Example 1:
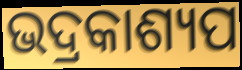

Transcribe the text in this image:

ଭଦ୍ରକାଶ୍ୟପ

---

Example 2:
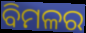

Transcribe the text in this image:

ବିମଳର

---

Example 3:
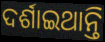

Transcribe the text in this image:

ଦର୍ଶାଇଥାନ୍ତି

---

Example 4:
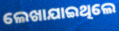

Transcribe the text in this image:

ଲେଖାଯାଇଥିଲେ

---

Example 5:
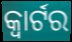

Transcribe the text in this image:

କ୍ଵାର୍ଟର